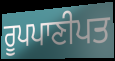
ਰੂਪਪਾਣੀਪਤ